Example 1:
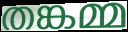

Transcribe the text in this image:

തങ്കമ്മ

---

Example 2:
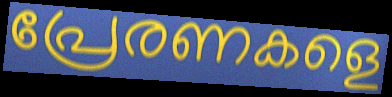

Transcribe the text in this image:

പ്രേരണകളെ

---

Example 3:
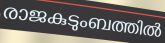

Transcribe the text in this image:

രാജകുടുംബത്തിൽ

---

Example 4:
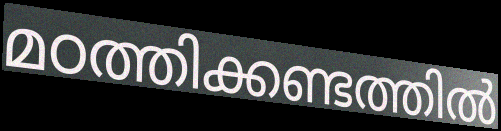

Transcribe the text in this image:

മഠത്തിക്കണ്ടത്തിൽ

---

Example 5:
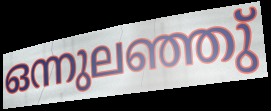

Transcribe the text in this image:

ഒന്നുലഞ്ഞു്